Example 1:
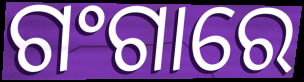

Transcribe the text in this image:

ଗଂଗାରେ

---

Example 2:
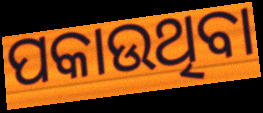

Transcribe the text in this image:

ପକାଉଥିବା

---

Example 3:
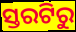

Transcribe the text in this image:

ସ୍ତରଟିରୁ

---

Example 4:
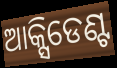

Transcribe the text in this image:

ଆକ୍ସିଡେଣ୍ଟ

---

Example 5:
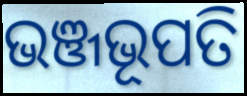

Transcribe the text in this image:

ଭଞ୍ଜଭୂପତି